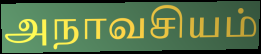
அநாவசியம்